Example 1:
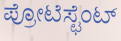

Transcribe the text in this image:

ಪ್ರೋಟೆಸ್ಟೆಂಟ್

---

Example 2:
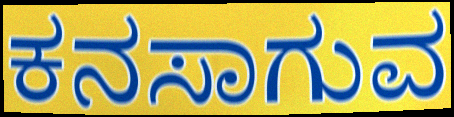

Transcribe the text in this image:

ಕನಸಾಗುವ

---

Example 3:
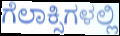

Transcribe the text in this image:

ಗೆಲಾಕ್ಸಿಗಳಲ್ಲಿ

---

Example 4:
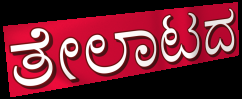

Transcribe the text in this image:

ತೇಲಾಟದ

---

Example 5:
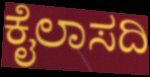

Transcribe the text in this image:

ಕೈಲಾಸದಿ